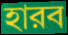
হারব